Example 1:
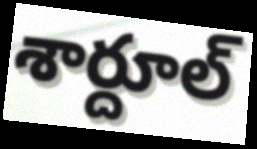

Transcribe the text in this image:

శార్దూల్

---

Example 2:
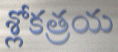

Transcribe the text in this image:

శ్లోకత్రయ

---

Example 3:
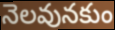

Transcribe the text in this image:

నెలవునకుం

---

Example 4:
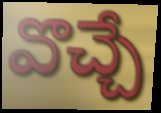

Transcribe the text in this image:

వొచ్చే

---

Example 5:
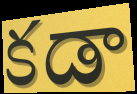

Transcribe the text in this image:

కడా